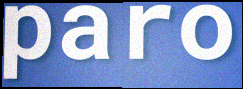
paro